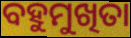
ବହୁମୁଖିତା